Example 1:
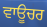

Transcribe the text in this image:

ਵਾਊਚਰ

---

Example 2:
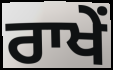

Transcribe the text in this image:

ਰਾਖੇਂ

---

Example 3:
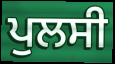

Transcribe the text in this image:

ਪੁਲਸੀ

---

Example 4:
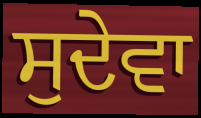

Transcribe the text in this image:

ਸੁਦੇਵਾ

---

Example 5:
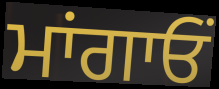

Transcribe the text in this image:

ਮਾਂਗਾਓਂ